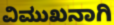
ವಿಮುಖನಾಗಿ